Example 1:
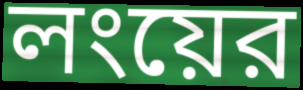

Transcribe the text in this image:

লংয়ের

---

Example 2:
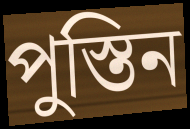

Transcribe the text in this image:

পুস্তিন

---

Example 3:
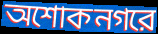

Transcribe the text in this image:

অশোকনগরে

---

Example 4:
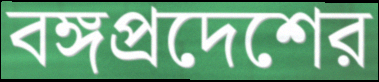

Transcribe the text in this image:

বঙ্গপ্রদেশের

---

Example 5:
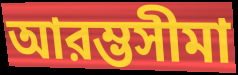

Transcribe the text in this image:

আরম্ভসীমা